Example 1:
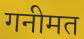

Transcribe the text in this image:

गनीमत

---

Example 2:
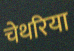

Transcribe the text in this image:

चेथरिया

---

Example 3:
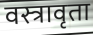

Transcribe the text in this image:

वस्त्रावृता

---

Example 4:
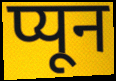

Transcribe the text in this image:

प्यून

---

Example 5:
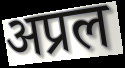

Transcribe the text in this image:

अप्रल